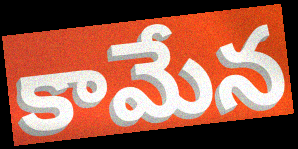
కామేన